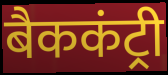
बैककंट्री